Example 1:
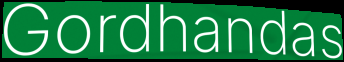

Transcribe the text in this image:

Gordhandas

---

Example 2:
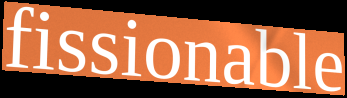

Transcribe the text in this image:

fissionable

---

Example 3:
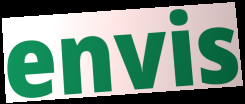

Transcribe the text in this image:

envis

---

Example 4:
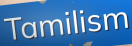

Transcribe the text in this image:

Tamilism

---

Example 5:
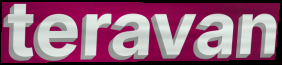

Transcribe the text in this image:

teravan